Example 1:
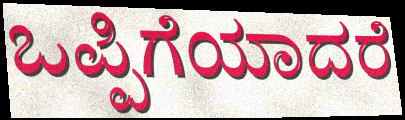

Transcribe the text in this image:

ಒಪ್ಪಿಗೆಯಾದರೆ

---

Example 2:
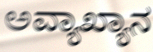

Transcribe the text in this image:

ಅವ್ಯಾಖ್ಯಾನ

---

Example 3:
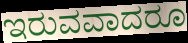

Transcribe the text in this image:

ಇರುವವಾದರೂ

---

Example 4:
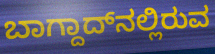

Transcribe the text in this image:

ಬಾಗ್ದಾದ್‌ನಲ್ಲಿರುವ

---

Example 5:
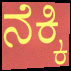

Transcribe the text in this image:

ನೆಕ್ಕಿ